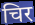
चिर